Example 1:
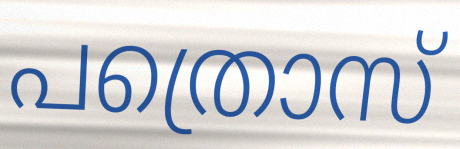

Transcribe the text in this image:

പത്രൊസ്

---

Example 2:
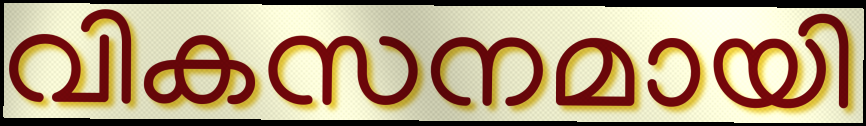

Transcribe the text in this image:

വികസനമായി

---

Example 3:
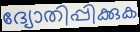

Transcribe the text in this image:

ദ്യോതിപ്പിക്കുക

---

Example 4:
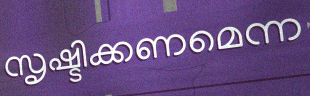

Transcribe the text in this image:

സൃഷ്ടിക്കണമെന്ന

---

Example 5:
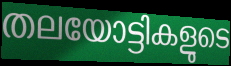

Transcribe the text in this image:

തലയോട്ടികളുടെ